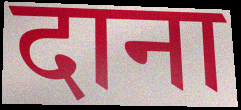
दाना